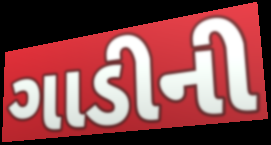
ગાડીની